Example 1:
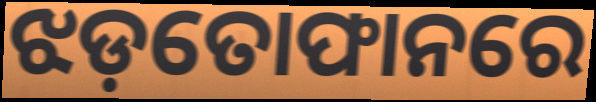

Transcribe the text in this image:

ଝଡ଼ତୋଫାନରେ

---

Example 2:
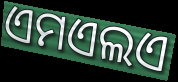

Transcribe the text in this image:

ଏମଏଲଏ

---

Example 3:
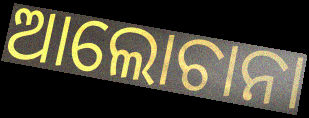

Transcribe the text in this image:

ଆଲୋଚାନା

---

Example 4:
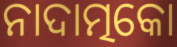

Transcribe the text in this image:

ନାଦାତ୍ମକୋ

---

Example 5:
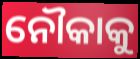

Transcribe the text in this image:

ନୌକାକୁ